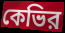
কেভির